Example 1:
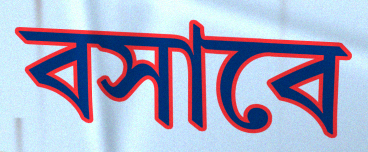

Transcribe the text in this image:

বসাবে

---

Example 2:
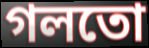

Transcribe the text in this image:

গলতো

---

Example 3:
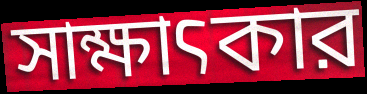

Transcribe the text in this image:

সাক্ষাৎকার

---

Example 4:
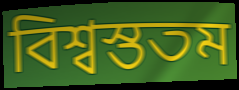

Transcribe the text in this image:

বিশ্বস্ততম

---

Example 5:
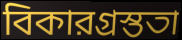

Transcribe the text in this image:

বিকারগ্রস্ততা